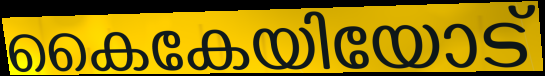
കൈകേയിയോട്